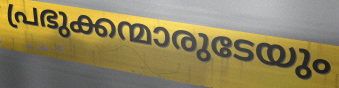
പ്രഭുക്കന്മാരുടേയും